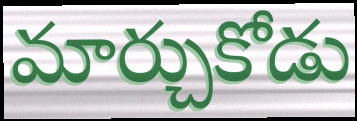
మార్చుకోడు